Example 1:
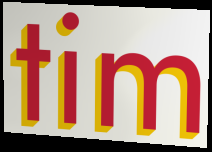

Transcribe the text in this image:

tim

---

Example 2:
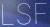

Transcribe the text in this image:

LSF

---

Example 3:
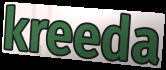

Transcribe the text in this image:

kreeda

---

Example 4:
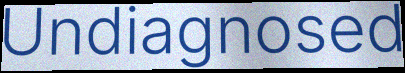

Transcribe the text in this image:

Undiagnosed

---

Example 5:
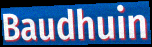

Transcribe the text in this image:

Baudhuin